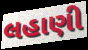
લહાણી